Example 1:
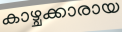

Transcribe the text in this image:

കാഴ്ചക്കാരായ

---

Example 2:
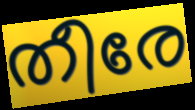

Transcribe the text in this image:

തീരേ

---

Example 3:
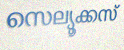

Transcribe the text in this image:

സെല്യൂക്കസ്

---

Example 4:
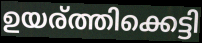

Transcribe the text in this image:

ഉയര്ത്തിക്കെട്ടി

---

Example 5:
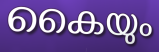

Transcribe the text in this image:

കൈയും